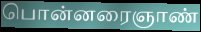
பொன்னரைஞாண்